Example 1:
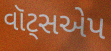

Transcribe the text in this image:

વૉટ્સએપ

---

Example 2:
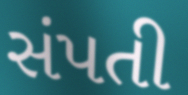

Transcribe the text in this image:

સંપતી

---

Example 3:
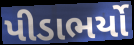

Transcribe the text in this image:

પીડાભર્યો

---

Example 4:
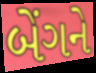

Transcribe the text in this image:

બેંગને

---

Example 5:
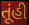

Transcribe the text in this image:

તૂંહી